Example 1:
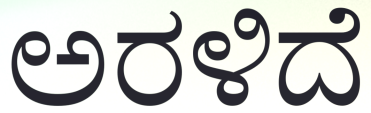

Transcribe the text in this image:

ಅರಳಿದೆ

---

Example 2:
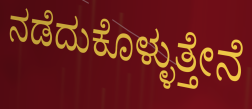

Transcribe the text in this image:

ನಡೆದುಕೊಳ್ಳುತ್ತೇನೆ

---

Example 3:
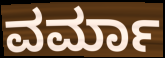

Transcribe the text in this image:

ವರ್ಮಾ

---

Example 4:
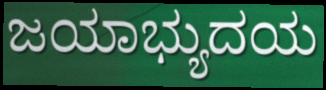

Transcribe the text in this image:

ಜಯಾಭ್ಯುದಯ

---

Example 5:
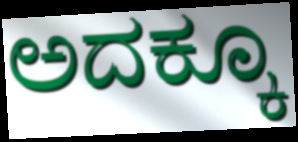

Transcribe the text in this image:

ಅದಕ್ಕೂ